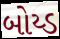
બોય્ડ